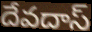
దేవదాస్